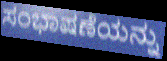
ಸಂಭಾಷಣೆಯನ್ನು